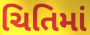
ચિતિમાં